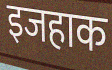
इजहाक